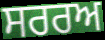
ਸਰਰਅ